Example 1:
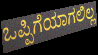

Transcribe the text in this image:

ಒಪ್ಪಿಗೆಯಾಗಲಿಲ್ಲ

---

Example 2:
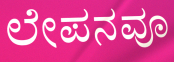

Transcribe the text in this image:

ಲೇಪನವೂ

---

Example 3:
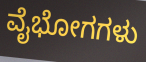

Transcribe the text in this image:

ವೈಭೋಗಗಳು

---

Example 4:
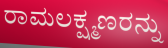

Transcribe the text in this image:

ರಾಮಲಕ್ಷ್ಮಣರನ್ನು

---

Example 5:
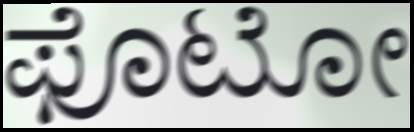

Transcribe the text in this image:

ಫೊಟೋ